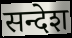
सन्देश